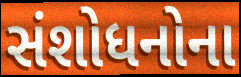
સંશોધનોના